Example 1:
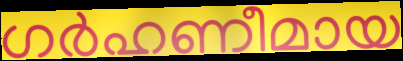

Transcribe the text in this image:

ഗർഹണീമായ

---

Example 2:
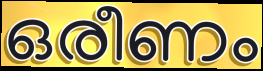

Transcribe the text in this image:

ഒരീണം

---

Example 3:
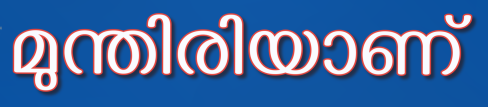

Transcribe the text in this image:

മുന്തിരിയാണ്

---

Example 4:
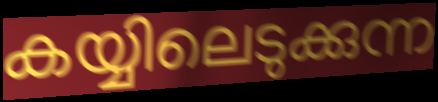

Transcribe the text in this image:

കയ്യിലെടുക്കുന്ന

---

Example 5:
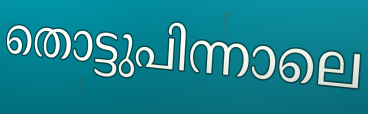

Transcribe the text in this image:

തൊട്ടുപിന്നാലെ